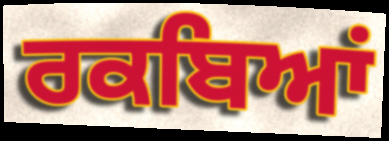
ਰਕਬਿਆਂ